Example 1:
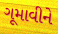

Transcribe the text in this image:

ગૂમાવીને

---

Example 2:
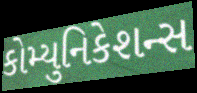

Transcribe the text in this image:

કોમ્યુનિકેશન્સ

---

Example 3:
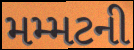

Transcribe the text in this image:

મમ્મટની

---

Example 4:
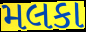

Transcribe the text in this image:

મલકા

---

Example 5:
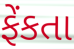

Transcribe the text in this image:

ફેંકતા